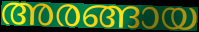
അരങ്ങായ